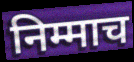
निम्माच